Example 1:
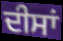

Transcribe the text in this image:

ਦੀਸਾਂ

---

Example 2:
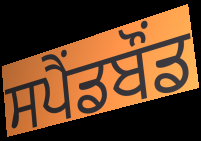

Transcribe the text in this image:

ਸਪੈਂਡਬੌਂਡ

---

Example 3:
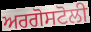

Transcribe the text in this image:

ਅਰਗੋਸਟੋਲੀ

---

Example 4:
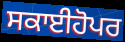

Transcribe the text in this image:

ਸਕਾਈਹੋਪਰ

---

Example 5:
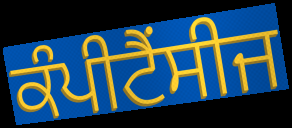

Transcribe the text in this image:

ਕੰਪੀਟੈਂਸੀਜ